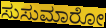
ಸುಸುಮಾರೋ